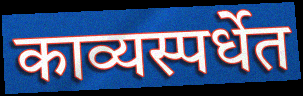
काव्यस्पर्धेत